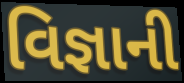
વિજ્ઞાની